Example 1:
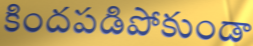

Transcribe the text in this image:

కిందపడిపోకుండా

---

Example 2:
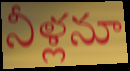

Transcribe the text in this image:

నీళ్లనూ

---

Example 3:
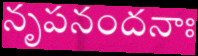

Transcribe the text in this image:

నృపనందనాః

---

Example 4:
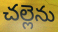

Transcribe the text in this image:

చల్లెను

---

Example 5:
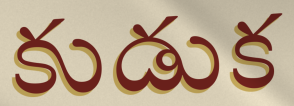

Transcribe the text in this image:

కుడుక